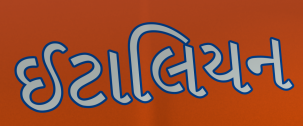
ઈટાલિયન